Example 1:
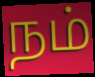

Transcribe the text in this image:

நம்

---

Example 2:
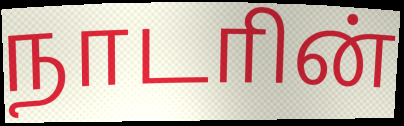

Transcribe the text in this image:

நாடரின்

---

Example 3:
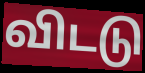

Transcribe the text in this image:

விடடு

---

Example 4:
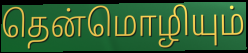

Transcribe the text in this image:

தென்மொழியும்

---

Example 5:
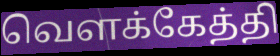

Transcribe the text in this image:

வெளக்கேத்தி